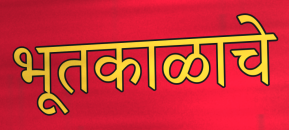
भूतकाळाचे